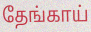
தேங்காய்